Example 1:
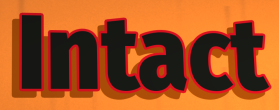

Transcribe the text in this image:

Intact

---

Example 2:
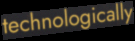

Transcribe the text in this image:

technologically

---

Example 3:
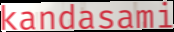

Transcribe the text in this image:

kandasami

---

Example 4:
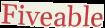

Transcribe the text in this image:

Fiveable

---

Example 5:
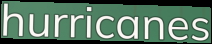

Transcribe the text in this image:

hurricanes